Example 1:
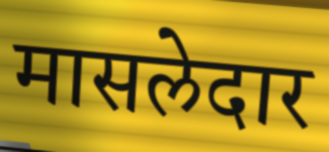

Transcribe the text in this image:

मासलेदार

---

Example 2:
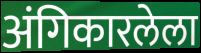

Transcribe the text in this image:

अंगिकारलेला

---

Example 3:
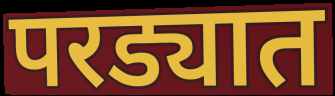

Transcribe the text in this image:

परड्यात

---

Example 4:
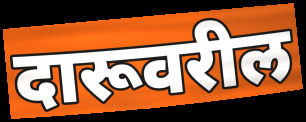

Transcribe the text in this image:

दारूवरील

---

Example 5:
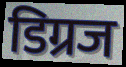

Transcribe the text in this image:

डिग्रज